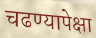
चढण्यापेक्षा